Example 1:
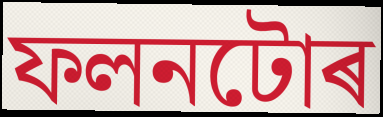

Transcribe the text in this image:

ফলনটোৰ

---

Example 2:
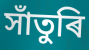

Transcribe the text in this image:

সাঁতুৰি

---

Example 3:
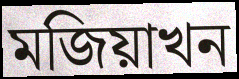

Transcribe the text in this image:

মজিয়াখন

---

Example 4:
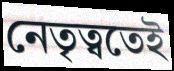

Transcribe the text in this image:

নেতৃত্বতেই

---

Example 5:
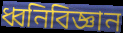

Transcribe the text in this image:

ধ্বনিবিজ্ঞান